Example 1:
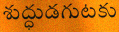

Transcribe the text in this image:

శుద్ధుడగుటకు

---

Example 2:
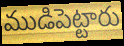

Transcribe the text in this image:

ముడిపెట్టారు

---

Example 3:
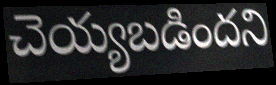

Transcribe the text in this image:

చెయ్యబడిందని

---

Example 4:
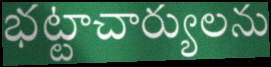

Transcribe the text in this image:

భట్టాచార్యులను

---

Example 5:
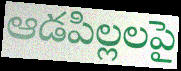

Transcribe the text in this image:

ఆడపిల్లలపై